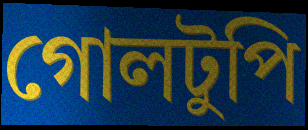
গোলটুপি